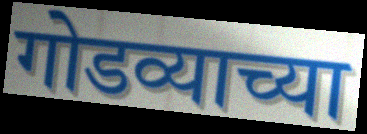
गोडव्याच्या